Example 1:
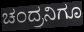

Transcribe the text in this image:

ಚಂದ್ರನಿಗೂ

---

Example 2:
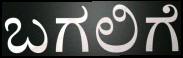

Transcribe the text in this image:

ಬಗಲಿಗೆ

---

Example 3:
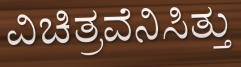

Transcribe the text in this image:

ವಿಚಿತ್ರವೆನಿಸಿತ್ತು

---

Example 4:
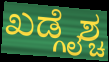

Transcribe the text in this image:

ಖಡ್ಗೈಶ್ಚ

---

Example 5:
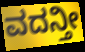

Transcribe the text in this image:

ವದನ್ತೀ